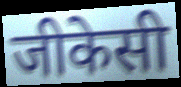
जीकेसी